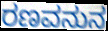
ರಣವನುನ